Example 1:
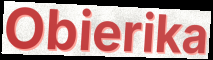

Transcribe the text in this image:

Obierika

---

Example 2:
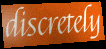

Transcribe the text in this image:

discretely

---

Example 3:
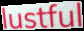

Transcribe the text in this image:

lustful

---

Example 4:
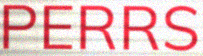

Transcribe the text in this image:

PERRS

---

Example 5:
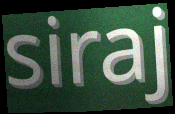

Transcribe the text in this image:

siraj